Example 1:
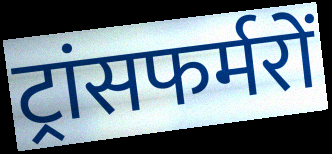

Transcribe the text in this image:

ट्रांसफर्मरों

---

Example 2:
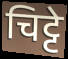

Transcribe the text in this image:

चिट्टे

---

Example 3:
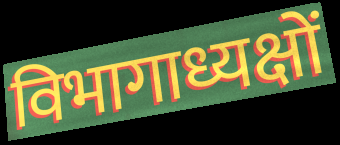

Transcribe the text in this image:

विभागाध्यक्षों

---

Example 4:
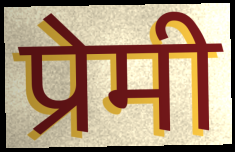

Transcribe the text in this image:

प्रेमी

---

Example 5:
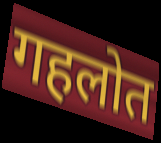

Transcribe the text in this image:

गहलोत